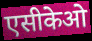
एसीकेओ